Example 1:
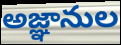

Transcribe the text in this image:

అజ్ఞానుల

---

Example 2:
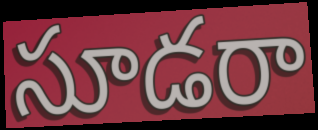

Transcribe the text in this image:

సూడరా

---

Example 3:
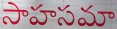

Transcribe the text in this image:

సాహసమా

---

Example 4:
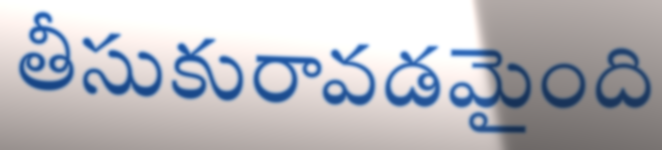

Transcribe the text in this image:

తీసుకురావడమైంది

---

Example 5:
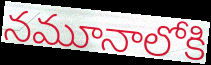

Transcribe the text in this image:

నమూనాలోకి